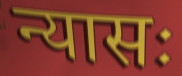
न्यासः